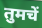
तुमचें